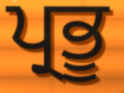
ਪ੍ਰ੍ਰਭੂ